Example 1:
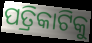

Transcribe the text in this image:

ପତ୍ରିକାଟିକୁ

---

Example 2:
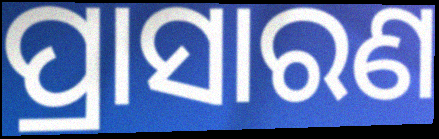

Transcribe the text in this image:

ପ୍ରାସାରଣ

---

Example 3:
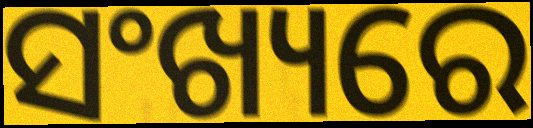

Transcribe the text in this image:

ସଂଖ୍ୟରେ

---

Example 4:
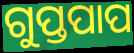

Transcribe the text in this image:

ଗୁପ୍ତପାପ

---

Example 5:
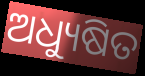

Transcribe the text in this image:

ଅଧ୍ୟୁଷିତ